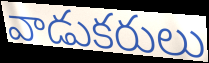
వాడుకరులు